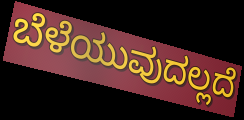
ಬೆಳೆಯುವುದಲ್ಲದೆ